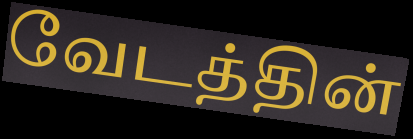
வேடத்தின்